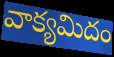
వాక్యమిదం